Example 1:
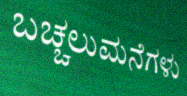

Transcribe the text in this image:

ಬಚ್ಚಲುಮನೆಗಳು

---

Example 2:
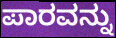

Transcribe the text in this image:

ಪಾರವನ್ನು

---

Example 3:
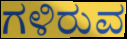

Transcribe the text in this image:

ಗಳಿರುವ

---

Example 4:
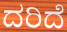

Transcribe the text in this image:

ದರಿದೆ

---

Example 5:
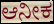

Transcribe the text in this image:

ಆನೀಕ